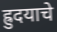
ह्रुदयाचे